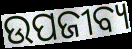
ଉପଜୀବ୍ୟ